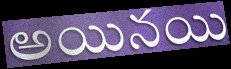
అయినయి